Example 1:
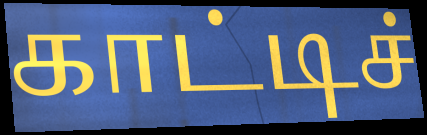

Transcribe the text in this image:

காட்டிச்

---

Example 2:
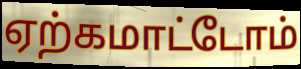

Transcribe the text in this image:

ஏற்கமாட்டோம்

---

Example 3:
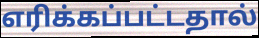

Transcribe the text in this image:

எரிக்கப்பட்டதால்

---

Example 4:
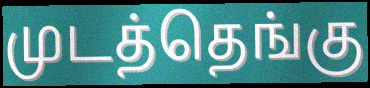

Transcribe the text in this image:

முடத்தெங்கு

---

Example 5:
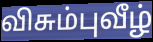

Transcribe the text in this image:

விசும்புவீழ்